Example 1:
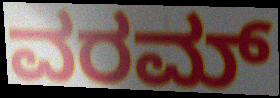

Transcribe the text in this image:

ವರಮ್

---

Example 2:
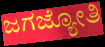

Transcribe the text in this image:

ಜಗಜ್ಯೋತಿ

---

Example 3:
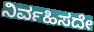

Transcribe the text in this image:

ನಿರ್ವಹಿಸದೇ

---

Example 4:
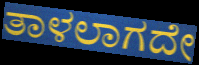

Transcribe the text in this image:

ತಾಳಲಾಗದೇ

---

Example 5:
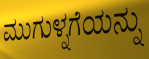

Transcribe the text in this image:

ಮುಗುಳ್ನಗೆಯನ್ನು